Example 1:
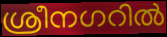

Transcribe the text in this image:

ശ്രീനഗറിൽ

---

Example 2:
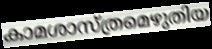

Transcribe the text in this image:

കാമശാസ്ത്രമെഴുതിയ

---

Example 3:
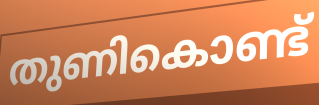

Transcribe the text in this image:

തുണികൊണ്ട്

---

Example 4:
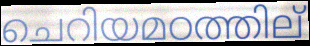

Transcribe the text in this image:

ചെറിയമഠത്തില്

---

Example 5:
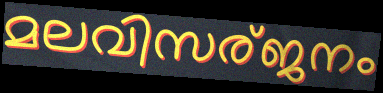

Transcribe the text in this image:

മലവിസര്ജനം